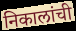
निकालांची